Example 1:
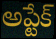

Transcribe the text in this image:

అప్టేక్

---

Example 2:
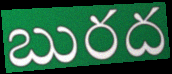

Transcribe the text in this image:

బురద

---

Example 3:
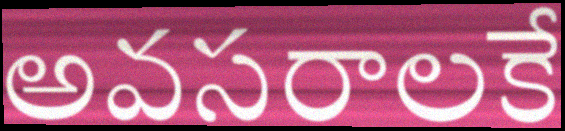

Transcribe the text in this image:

అవసరాలకే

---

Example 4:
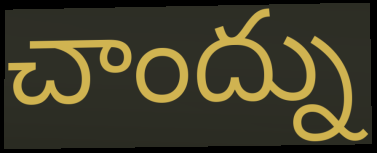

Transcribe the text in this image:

చాంద్ను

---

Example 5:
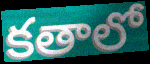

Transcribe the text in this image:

కతాలో